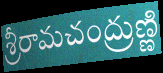
శ్రీరామచంద్రుణ్ణి